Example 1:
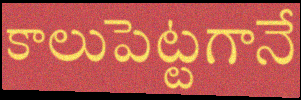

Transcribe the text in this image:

కాలుపెట్టగానే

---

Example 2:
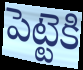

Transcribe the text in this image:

పెట్టెకి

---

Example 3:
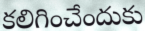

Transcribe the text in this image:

కలిగించేందుకు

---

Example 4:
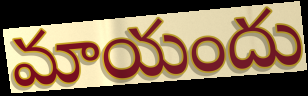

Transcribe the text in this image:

మాయందు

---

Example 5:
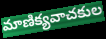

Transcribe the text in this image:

మాణిక్యవాచకుల